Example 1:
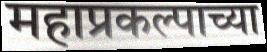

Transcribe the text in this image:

महाप्रकल्पाच्या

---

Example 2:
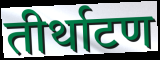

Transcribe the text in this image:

तीर्थाटण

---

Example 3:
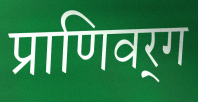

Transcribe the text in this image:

प्राणिवर्ग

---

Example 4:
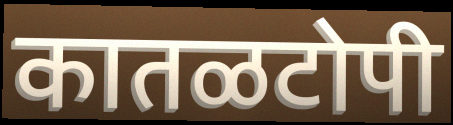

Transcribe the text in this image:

कातळटोपी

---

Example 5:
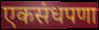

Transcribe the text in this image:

एकसंधपणा